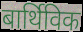
बार्थिविक